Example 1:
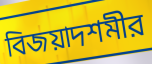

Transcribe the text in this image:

বিজয়াদশমীর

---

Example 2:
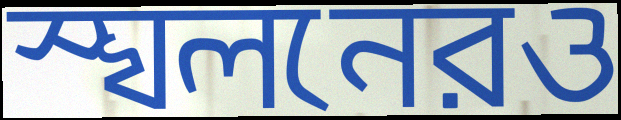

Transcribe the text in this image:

স্খলনেরও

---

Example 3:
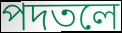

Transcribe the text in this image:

পদতলে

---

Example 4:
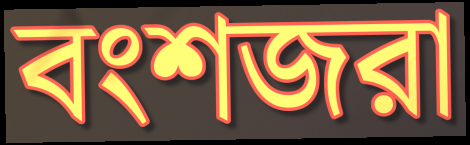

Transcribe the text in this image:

বংশজরা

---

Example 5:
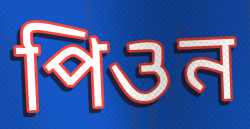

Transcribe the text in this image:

পিওন